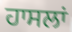
ਹਾਸਲਾਂ